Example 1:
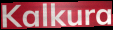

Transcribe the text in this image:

Kalkura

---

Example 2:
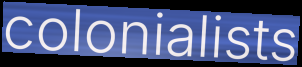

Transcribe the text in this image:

colonialists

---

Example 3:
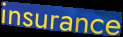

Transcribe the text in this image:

insurance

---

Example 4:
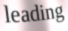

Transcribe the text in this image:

leading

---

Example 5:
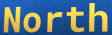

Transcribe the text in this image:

North